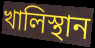
খালিস্থান